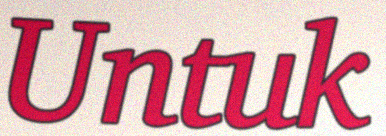
Untuk